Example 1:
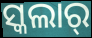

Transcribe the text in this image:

ସ୍କଲାର୍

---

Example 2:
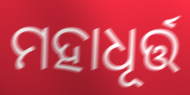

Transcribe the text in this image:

ମହାଧୂର୍ତ୍ତ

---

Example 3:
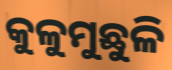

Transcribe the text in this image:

କୁଳୁମୁଛୁଳି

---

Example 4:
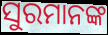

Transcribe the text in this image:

ସୁରମାନଙ୍କ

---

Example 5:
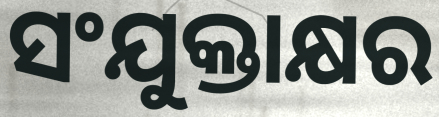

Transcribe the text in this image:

ସଂଯୁକ୍ତାକ୍ଷର